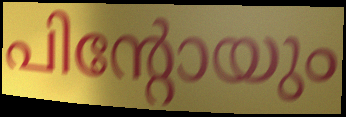
പിന്റോയും